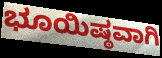
ಭೂಯಿಷ್ಠವಾಗಿ